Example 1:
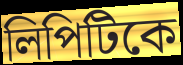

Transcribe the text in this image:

লিপিটিকে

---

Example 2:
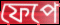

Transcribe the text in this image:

ফেপে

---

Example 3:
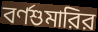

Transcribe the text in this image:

বর্ণশুমারির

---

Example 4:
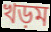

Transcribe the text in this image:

খড়ম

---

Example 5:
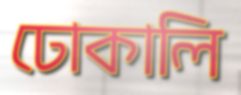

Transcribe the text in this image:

ঢোকালি